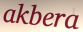
akbera